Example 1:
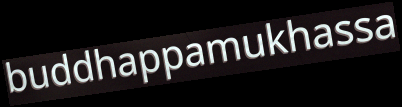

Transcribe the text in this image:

buddhappamukhassa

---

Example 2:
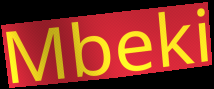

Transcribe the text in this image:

Mbeki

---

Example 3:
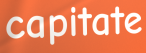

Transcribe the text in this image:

capitate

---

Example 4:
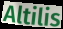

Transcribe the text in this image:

Altilis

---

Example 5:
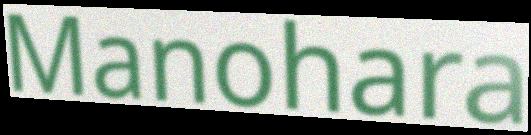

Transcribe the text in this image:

Manohara